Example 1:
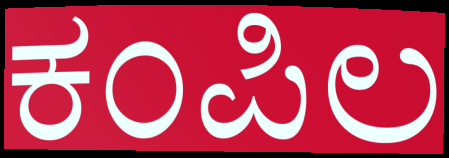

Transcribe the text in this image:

ಕಂಪಿಲ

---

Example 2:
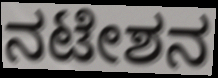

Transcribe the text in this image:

ನಟೇಶನ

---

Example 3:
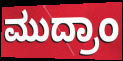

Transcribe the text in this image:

ಮುದ್ರಾಂ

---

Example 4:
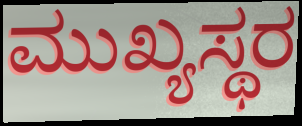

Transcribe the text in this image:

ಮುಖ್ಯಸ್ಥರ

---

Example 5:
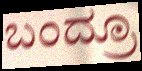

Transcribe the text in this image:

ಬಂದ್ರೂ